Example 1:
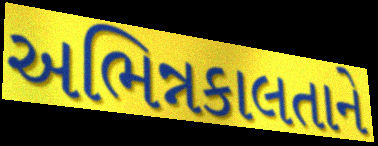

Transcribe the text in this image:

અભિન્નકાલતાને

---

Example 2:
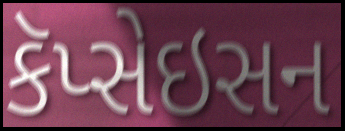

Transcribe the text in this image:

કૅપ્સેઇસન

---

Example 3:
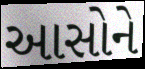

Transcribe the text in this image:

આસોને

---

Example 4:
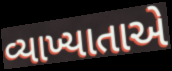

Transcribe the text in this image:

વ્યાખ્યાતાએ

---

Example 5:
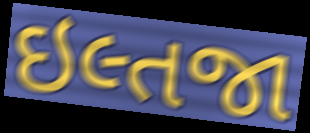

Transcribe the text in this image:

ઇલ્તજા